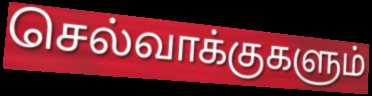
செல்வாக்குகளும்